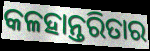
କଳହାନ୍ତରିତାର